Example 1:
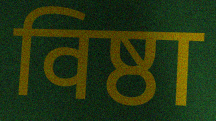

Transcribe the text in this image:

विष्ठा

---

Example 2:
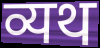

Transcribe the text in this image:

व्यथ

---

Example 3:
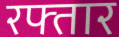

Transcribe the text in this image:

रफ्‍तार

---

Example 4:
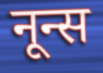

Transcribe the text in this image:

नून्स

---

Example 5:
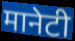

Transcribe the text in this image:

मानेटी